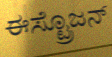
ಈಸ್ಟ್ರೊಜನ್